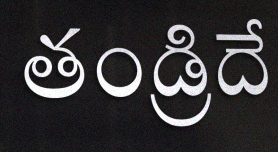
తండ్రిదే